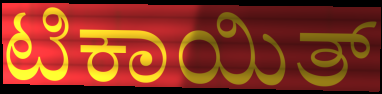
ಟಿಕಾಯಿತ್